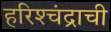
हरिश्‍चंद्राची